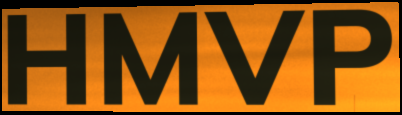
HMVP